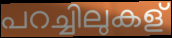
പറച്ചിലുകള്